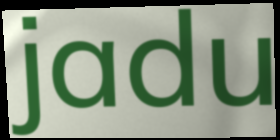
jadu